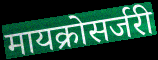
मायक्रोसर्जरी